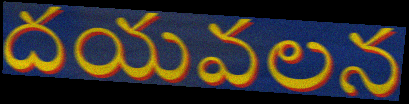
దయవలన